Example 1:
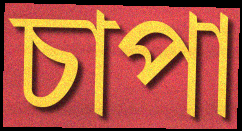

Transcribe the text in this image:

চাপা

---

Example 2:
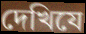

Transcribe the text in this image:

দেখিযে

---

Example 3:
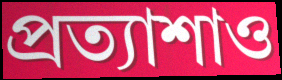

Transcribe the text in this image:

প্রত্যাশাও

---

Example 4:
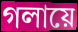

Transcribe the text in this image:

গলায়ে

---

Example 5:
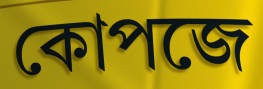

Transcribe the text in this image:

কোপজে